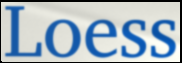
Loess